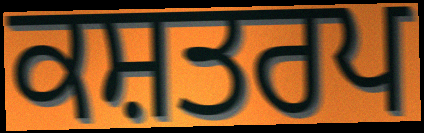
ਕਸ਼ਤਰਪ